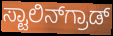
ಸ್ಟಾಲಿನ್‌ಗ್ರಾಡ್